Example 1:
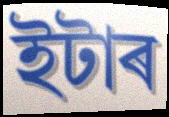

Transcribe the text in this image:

ইটাৰ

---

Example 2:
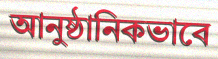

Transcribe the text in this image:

আনুষ্ঠানিকভাবে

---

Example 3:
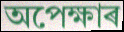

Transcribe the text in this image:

অপেক্ষাৰ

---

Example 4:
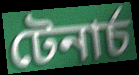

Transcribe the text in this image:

টেনাৰ্চ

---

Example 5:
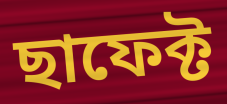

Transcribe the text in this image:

ছাফেক্ট